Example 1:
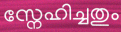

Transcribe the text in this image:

സ്നേഹിച്ചതും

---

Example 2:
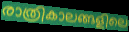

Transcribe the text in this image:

രാത്രികാലങ്ങളിലെ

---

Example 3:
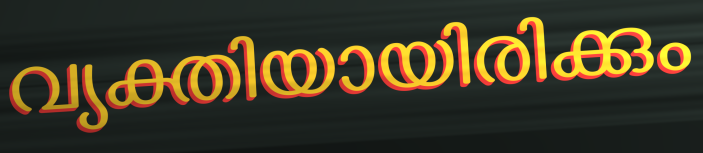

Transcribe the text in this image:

വ്യക്തിയായിരിക്കും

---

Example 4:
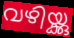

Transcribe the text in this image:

വഴിയ്ക്കു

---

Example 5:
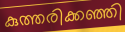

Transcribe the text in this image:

കുത്തരിക്കഞ്ഞി